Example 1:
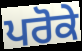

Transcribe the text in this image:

ਪਰੋਕੇ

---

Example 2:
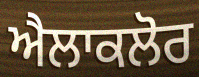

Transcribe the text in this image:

ਐਲਾਕਲੋਰ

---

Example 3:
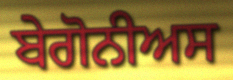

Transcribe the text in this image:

ਬੇਗੋਨੀਅਸ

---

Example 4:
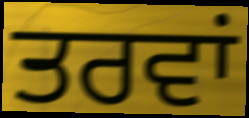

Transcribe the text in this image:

ਤਰਵਾਂ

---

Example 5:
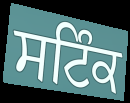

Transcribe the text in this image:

ਸਟਿੰਕ